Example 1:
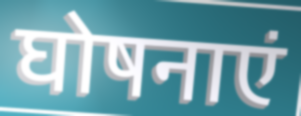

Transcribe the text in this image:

घोषनाएं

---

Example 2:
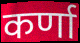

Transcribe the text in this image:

कर्णा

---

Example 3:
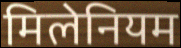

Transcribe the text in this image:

मिलेनियम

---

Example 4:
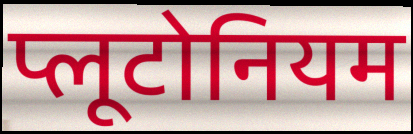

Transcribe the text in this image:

प्लूटोनियम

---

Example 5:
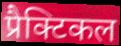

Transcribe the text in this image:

प्रैक्टिकल